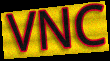
VNC